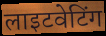
लाइटवेटिंग